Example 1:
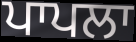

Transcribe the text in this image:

ਪਾਪਲਾ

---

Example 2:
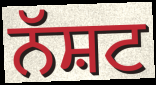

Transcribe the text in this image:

ਨੱਸ਼ਟ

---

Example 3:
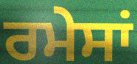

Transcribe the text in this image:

ਰਮੇਸਾਂ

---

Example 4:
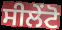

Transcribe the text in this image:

ਸੀਲੇਂਟੋ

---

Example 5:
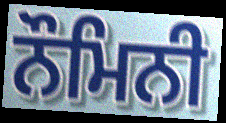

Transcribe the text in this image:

ਨੌਮਿਨੀ